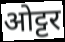
ओट्टर